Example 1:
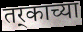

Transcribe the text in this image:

तर्काच्या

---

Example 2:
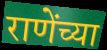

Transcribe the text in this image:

राणेंच्या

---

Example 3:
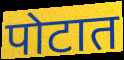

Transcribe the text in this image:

पोटात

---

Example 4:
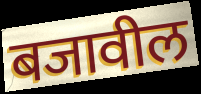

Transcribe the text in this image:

बजावील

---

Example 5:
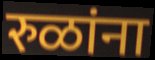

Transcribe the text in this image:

रुळांना